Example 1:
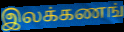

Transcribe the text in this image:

இலக்கணங்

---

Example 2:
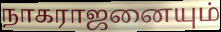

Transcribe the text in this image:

நாகராஜனையும்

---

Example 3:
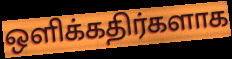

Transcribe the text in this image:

ஒளிக்கதிர்களாக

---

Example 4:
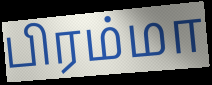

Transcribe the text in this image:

பிரம்மா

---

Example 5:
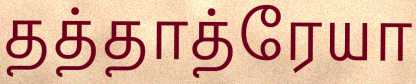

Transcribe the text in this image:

தத்தாத்ரேயா